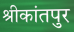
श्रीकांतपुर